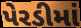
પેરડીમાં